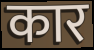
कार